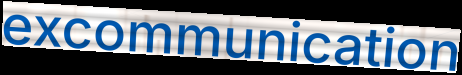
excommunication